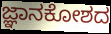
ಜ್ಞಾನಕೋಶದ